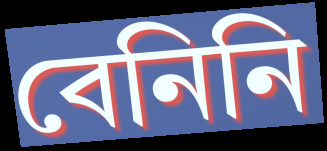
বেনিনি